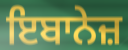
ਇਬਾਨੇਜ਼